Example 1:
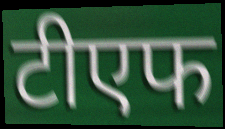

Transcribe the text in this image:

टीएफ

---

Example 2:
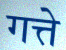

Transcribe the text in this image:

गत्ते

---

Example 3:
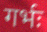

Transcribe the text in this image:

गर्भः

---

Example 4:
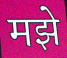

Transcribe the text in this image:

मझे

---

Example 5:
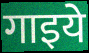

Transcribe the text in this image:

गाइये